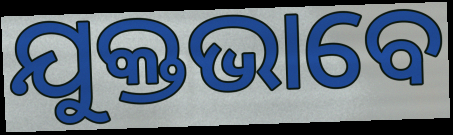
ଯୁକ୍ତଭାବେ